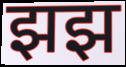
झझ